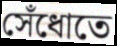
সেঁধোতে